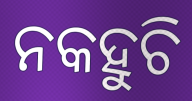
ନକହୁଚି